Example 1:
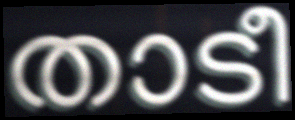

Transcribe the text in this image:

താടീ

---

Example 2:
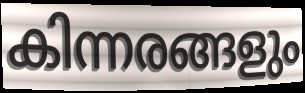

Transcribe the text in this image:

കിന്നരങ്ങളും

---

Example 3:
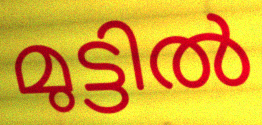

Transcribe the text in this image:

മുട്ടിൽ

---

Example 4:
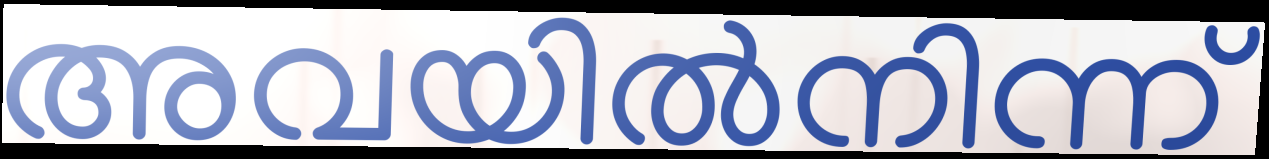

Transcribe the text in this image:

അവയിൽനിന്ന്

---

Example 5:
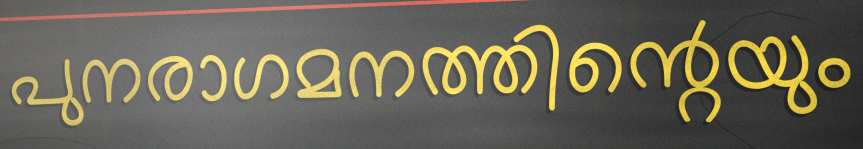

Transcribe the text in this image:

പുനരാഗമനത്തിന്റെയും